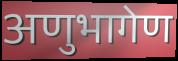
अणुभागेण